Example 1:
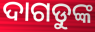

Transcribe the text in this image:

ଦାଗଡୁଙ୍କ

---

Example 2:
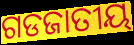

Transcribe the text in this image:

ଗଡଜାତୀୟ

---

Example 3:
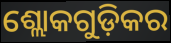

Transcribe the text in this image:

ଶ୍ଲୋକଗୁଡ଼ିକର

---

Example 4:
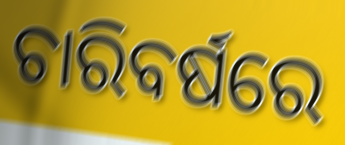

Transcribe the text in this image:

ଚାରିବର୍ଷରେ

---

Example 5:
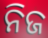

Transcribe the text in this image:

ନିଜ